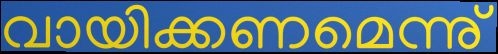
വായിക്കണമെന്നു്